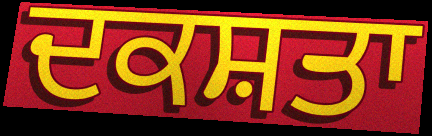
ਦਕਸ਼ਤਾ